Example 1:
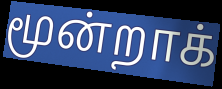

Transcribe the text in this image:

மூன்றாக்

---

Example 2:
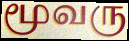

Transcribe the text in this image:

மூவரு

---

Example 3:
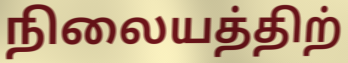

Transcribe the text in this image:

நிலையத்திற்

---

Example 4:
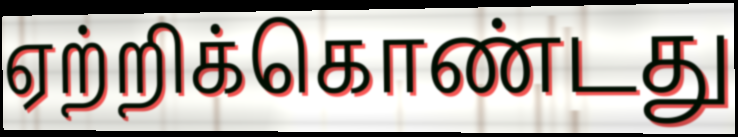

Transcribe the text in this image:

ஏற்றிக்கொண்டது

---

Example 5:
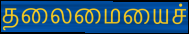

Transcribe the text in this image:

தலைமையைச்